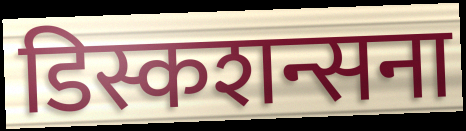
डिस्कशन्सना